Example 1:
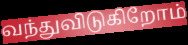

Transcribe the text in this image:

வந்துவிடுகிறோம்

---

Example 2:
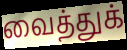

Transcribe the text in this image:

வைத்துக்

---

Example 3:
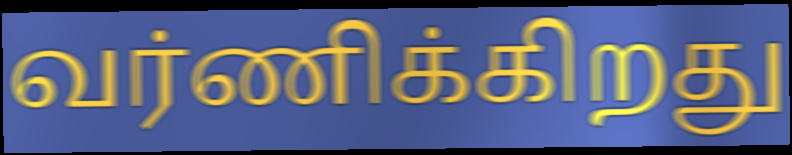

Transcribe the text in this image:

வர்ணிக்கிறது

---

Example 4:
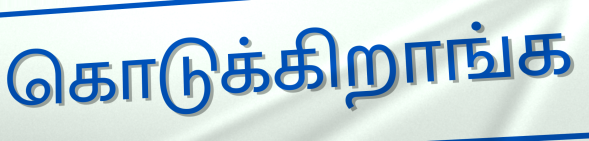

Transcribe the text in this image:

கொடுக்கிறாங்க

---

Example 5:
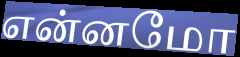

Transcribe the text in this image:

என்னமோ